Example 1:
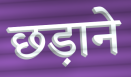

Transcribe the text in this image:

छड़ाने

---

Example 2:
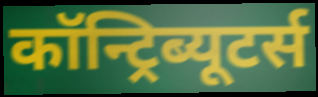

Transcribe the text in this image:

कॉन्ट्रिब्यूटर्स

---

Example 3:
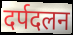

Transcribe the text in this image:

दर्पदलन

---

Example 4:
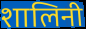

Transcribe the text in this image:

शालिनी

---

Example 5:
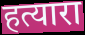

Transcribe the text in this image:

हत्यारा